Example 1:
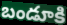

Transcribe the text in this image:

బండూకి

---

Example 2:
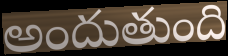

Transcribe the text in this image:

అందుతుంది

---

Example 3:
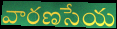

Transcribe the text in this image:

వారణసేయ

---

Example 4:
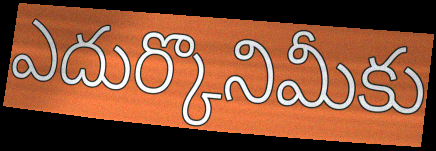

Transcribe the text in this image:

ఎదుర్కొనిమీకు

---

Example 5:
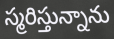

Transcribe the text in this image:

స్మరిస్తున్నాను